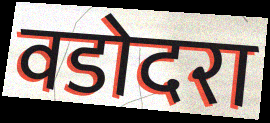
वडोदरा